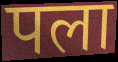
पला